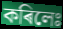
কৰিলেঃ